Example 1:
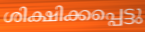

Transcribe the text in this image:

ശിക്ഷിക്കപ്പെട്ടു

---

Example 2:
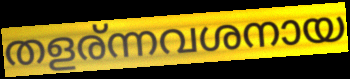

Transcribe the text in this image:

തളര്ന്നവശനായ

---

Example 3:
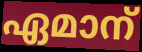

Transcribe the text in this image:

ഏമാന്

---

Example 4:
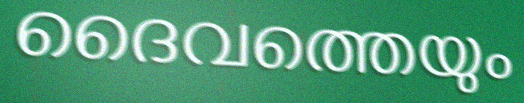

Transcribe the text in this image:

ദൈവത്തെയും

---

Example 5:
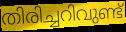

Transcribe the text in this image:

തിരിച്ചറിവുണ്ട്